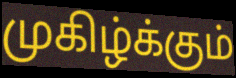
முகிழ்க்கும்